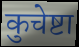
कुचेष्टा